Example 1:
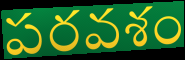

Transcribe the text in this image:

పరవశం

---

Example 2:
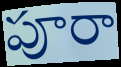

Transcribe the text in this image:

పూరా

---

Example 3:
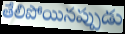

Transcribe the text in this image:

తేలిపోయినప్పుడు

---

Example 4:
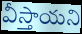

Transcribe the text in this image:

వీస్తాయని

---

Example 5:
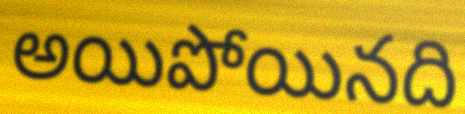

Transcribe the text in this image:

అయిపోయినది